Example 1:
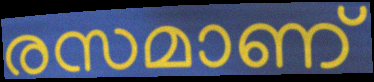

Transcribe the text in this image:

രസമാണ്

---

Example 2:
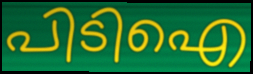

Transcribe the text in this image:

പിടിഐ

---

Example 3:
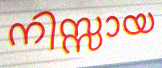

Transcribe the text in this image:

നിസ്സായ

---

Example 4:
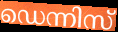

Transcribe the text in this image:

ഡെന്നിസ്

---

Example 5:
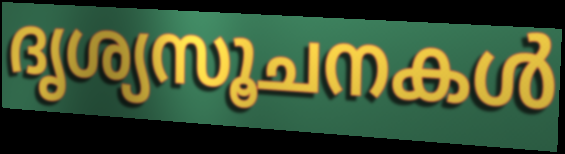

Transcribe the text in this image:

ദൃശ്യസൂചനകൾ